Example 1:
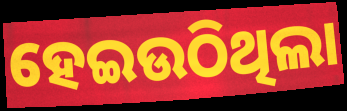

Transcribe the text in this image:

ହେଇଉଠିଥିଲା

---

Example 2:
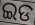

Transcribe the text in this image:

ଇଡ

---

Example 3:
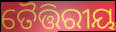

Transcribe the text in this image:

ତୈତ୍ତିରୀୟ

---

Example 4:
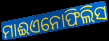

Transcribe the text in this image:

ମାଈଏନୋଫିଲିସ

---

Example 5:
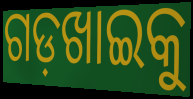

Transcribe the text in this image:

ଗଡ଼ଖାଇକୁ